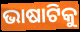
ଭାଷାଟିକୁ